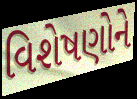
વિશેષણોને